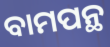
ବାମପନ୍ଥ